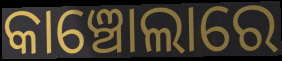
କାଞ୍ଚୋଲାରେ